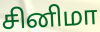
சினிமா